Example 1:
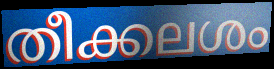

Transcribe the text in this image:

തീക്കലശം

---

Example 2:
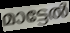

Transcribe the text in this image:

മാട്ടേൽ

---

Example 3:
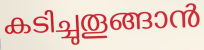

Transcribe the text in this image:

കടിച്ചുതൂങ്ങാൻ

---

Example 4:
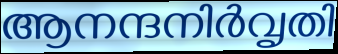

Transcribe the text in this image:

ആനന്ദനിർവൃതി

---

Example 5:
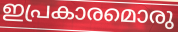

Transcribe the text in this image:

ഇപ്രകാരമൊരു